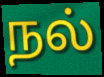
நல்